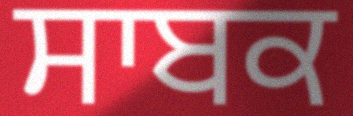
ਸਾਬਕ